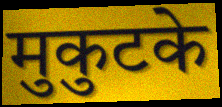
मुकुटके